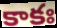
కాకః